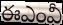
ఈఎంవీ